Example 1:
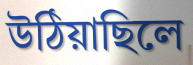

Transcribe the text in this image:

উঠিয়াছিলে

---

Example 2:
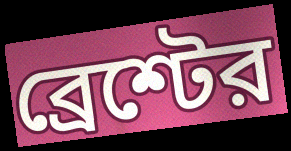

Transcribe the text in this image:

ব্রেশ্টের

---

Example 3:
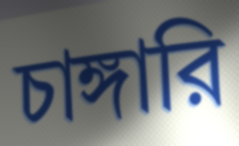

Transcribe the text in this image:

চাঙ্গারি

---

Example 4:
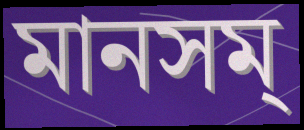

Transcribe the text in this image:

মানসম্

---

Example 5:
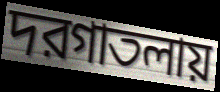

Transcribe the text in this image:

দরগাতলায়